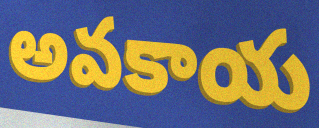
అవకాయ